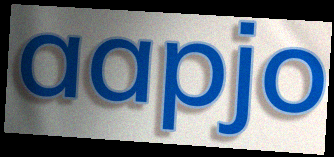
aapjo